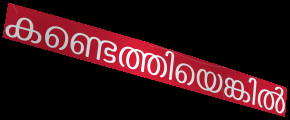
കണ്ടെത്തിയെങ്കിൽ